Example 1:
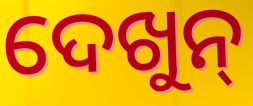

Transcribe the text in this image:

ଦେଖୁନ୍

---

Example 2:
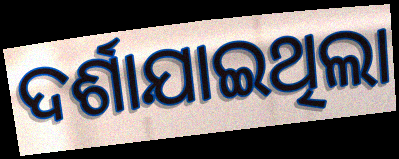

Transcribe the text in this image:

ଦର୍ଶାଯାଇଥିଲା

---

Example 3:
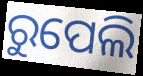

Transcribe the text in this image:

ରୁପେଲି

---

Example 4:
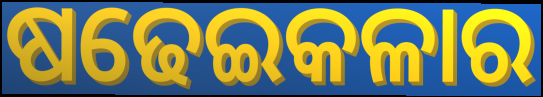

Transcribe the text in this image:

ଷଢେଇକଳାର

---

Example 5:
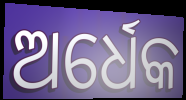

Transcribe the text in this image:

ଅର୍ଧେକ